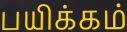
பயிக்கம்